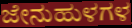
ಜೇನುಹುಳಗಳ